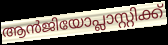
ആൻജിയോപ്ലാസ്റ്റിക്ക്